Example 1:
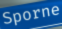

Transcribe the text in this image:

Sporne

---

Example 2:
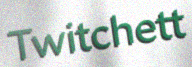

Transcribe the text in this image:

Twitchett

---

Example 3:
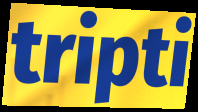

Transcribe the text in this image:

tripti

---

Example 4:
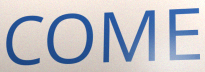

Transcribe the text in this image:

COME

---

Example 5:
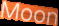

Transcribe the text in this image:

Moon